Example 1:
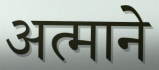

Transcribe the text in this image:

अत्माने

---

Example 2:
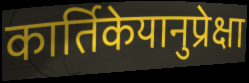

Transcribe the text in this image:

कार्तिकेयानुप्रेक्षा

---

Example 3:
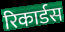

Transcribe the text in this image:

रिकार्डस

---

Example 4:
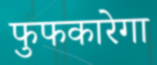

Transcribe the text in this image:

फुफकारेगा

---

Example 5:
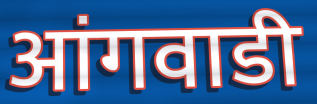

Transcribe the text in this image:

आंगवाडी